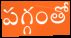
పగ్గంతో